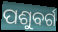
ପଶୁବର୍ଗ